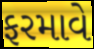
ફરમાવે